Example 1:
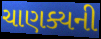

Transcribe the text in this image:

ચાણક્યની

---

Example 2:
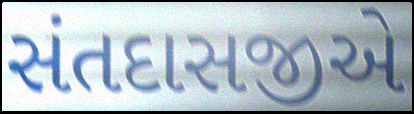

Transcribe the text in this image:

સંતદાસજીએ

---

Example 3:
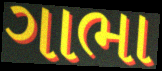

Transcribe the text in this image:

ગાભા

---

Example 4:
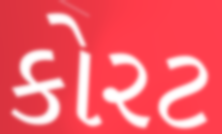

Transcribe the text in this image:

કોરટ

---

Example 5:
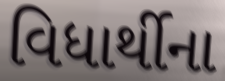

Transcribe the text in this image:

વિધાર્થીના